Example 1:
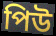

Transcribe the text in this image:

পিউ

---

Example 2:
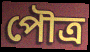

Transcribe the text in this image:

পৌত্র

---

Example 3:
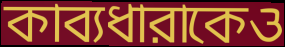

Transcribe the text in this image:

কাব্যধারাকেও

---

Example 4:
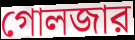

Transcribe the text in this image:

গোলজার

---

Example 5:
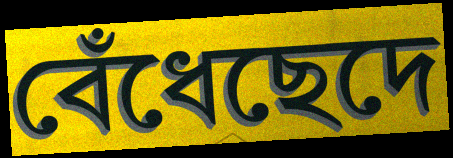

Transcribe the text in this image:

বেঁধেছেদে